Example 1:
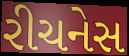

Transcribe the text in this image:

રીચનેસ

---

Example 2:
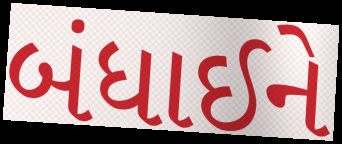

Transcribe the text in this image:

બંધાઈને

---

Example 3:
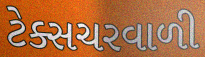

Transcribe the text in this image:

ટેક્સચરવાળી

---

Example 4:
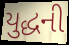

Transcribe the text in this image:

યુદ્ધની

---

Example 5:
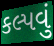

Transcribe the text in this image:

કલ્પવું